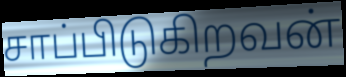
சாப்பிடுகிறவன்